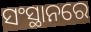
ସଂସ୍ଥାନରେ